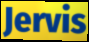
Jervis